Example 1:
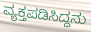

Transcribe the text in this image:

ವ್ಯಕ್ತಪಡಿಸಿದ್ದನು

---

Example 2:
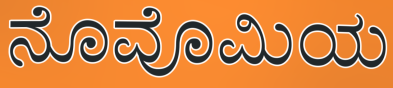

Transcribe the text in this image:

ನೊವೊಮಿಯ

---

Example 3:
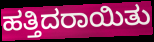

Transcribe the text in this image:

ಹತ್ತಿದರಾಯಿತು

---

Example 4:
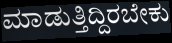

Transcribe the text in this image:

ಮಾಡುತ್ತಿದ್ದಿರಬೇಕು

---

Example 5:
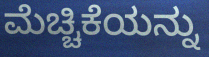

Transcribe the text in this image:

ಮೆಚ್ಚಿಕೆಯನ್ನು